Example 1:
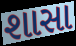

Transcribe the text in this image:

શાસા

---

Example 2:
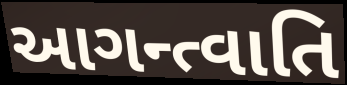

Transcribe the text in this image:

આગન્ત્વાતિ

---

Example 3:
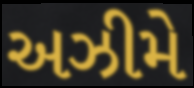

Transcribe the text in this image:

અઝીમે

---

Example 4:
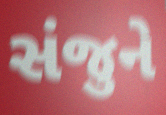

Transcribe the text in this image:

સંજુને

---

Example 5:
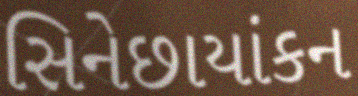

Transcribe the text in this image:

સિનેછાયાંકન